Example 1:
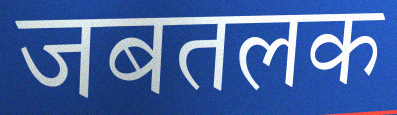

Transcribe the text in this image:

जबतलक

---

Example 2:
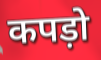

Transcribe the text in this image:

कपड़ो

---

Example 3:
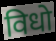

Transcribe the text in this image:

विधो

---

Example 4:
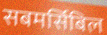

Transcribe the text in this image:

सबमर्सिबिल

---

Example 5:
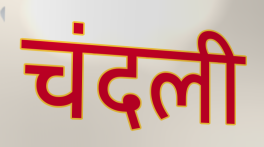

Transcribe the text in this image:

चंदली